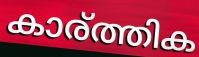
കാര്ത്തിക